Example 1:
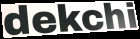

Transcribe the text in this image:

dekchi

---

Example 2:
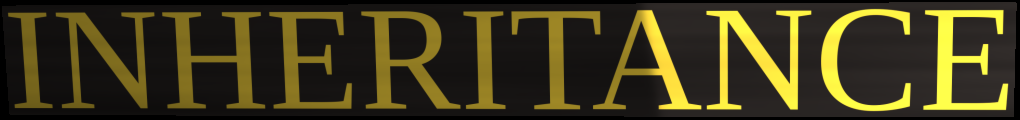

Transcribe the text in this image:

INHERITANCE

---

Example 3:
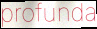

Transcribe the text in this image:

profunda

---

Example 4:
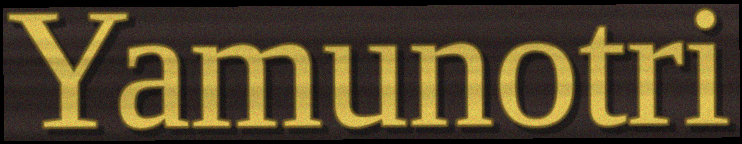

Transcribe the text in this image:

Yamunotri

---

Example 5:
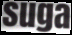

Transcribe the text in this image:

suga